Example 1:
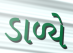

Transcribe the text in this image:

ડાળ્યે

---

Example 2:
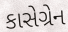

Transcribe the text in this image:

કાસેગ્રેન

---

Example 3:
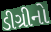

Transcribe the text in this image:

ડીગ્રીનો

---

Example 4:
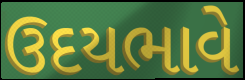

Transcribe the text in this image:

ઉદયભાવે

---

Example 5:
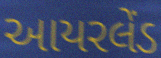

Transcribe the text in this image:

આયરલેંડ